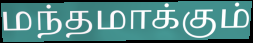
மந்தமாக்கும்